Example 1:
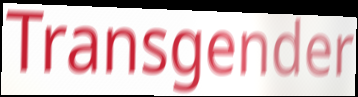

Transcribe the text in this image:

Transgender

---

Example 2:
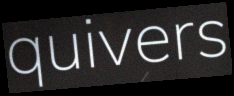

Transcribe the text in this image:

quivers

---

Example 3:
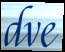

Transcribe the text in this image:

dve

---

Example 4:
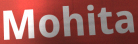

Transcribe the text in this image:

Mohita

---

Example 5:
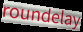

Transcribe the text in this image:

roundelay